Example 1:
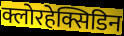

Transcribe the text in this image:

क्लोरहेक्सिडिन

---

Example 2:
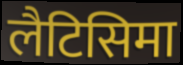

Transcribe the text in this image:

लैटिसिमा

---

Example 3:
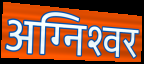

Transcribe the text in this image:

अग्निश्वर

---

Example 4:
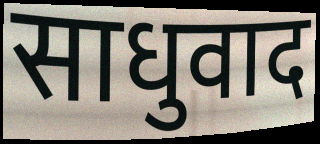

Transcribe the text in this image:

साधुवाद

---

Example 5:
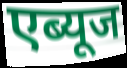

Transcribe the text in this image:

एब्यूज